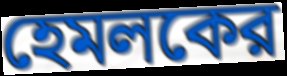
হেমলকের